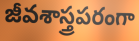
జీవశాస్త్రపరంగా